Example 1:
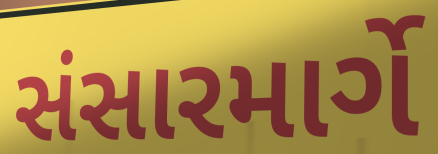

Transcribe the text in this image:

સંસારમાર્ગે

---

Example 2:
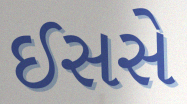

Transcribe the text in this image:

ઈસસે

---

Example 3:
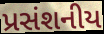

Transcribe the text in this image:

પ્રસંશનીય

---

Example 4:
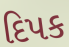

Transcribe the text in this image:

દિપક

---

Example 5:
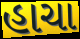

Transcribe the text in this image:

હાચા